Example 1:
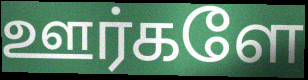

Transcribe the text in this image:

ஊர்களே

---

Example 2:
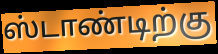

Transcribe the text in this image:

ஸ்டாண்டிற்கு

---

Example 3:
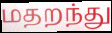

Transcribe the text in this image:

மதறந்து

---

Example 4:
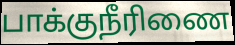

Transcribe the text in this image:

பாக்குநீரிணை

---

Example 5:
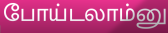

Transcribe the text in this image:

போய்டலாம்னு